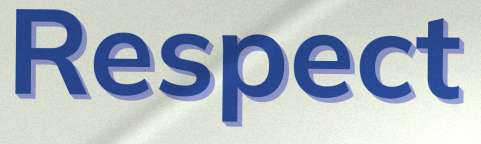
Respect